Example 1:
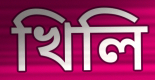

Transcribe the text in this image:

খিলি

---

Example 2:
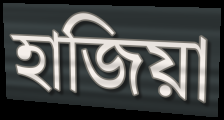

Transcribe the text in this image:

হাজিয়া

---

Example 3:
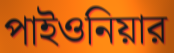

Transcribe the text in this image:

পাইওনিয়ার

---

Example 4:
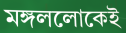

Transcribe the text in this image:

মঙ্গললোকেই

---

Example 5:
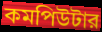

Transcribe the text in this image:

কমপিউটার